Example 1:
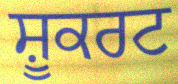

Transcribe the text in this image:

ਸ਼ੂਕਰਟ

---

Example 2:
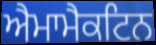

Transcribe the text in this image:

ਐਮਾਮੈਕਟਿਨ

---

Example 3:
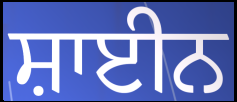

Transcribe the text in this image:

ਸ਼ਾਈਨ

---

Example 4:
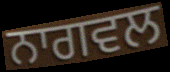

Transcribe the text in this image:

ਨਾਗਵਲ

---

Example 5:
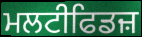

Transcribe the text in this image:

ਮਲਟੀਫਿਡਜ਼